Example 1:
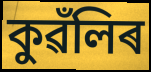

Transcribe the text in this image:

কুৱঁলিৰ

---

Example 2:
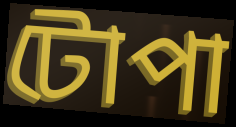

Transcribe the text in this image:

টোপা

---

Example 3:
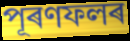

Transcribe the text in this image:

পূৰণফলৰ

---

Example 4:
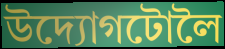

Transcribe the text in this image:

উদ্যোগটোলৈ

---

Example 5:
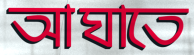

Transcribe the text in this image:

আঘাতে